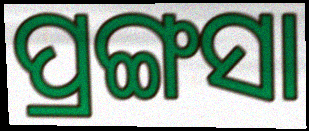
ପ୍ରଙ୍ଗସା